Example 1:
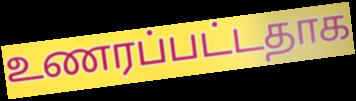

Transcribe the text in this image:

உணரப்பட்டதாக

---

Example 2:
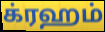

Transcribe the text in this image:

க்ரஹம்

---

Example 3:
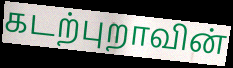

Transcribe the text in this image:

கடற்புறாவின்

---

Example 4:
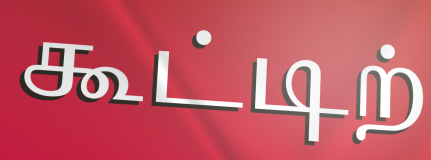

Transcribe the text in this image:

கூட்டிற்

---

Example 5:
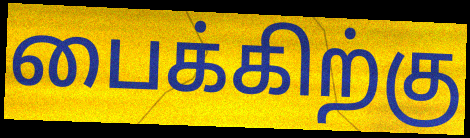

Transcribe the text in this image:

பைக்கிற்கு